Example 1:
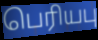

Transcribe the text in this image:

பெரியபு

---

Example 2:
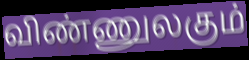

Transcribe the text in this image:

விண்ணுலகும்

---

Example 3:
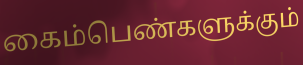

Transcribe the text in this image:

கைம்பெண்களுக்கும்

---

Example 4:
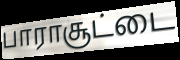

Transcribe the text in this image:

பாராசூட்டை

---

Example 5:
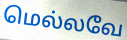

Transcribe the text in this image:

மெல்லவே